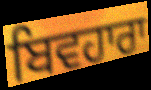
ਬਿਵਹਾਰਾ